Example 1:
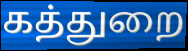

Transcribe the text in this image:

கத்துறை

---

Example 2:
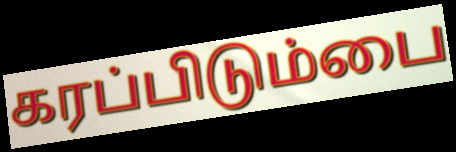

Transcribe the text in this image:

கரப்பிடும்பை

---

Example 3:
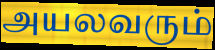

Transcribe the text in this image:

அயலவரும்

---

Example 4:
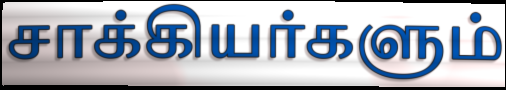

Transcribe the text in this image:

சாக்கியர்களும்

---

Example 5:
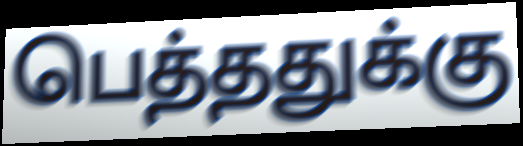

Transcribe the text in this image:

பெத்ததுக்கு